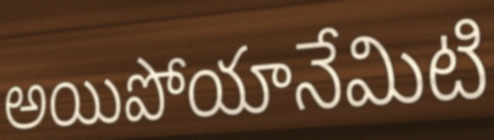
అయిపోయానేమిటి